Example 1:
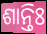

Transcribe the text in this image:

ଶାନ୍ତିଃ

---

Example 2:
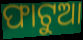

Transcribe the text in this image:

ଫାଟୁଆ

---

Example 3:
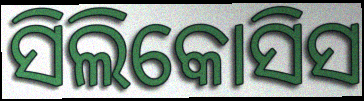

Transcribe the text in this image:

ସିଲିକୋସିସ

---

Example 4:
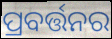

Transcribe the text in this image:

ପ୍ରବର୍ତ୍ତନର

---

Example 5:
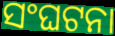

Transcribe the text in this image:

ସଂଘଟନା